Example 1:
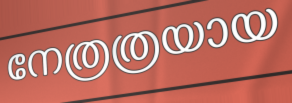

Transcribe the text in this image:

നേത്രത്രയായ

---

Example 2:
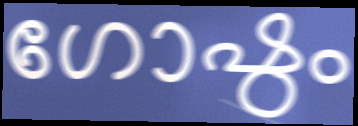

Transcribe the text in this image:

ഗോഷ്ഠം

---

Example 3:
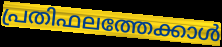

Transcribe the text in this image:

പ്രതിഫലത്തേക്കാൾ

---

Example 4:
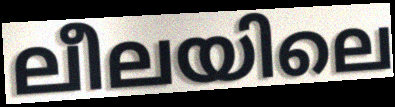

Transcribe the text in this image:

ലീലയിലെ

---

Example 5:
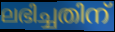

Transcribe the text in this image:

ലഭിച്ചതിന്